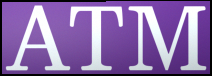
ATM